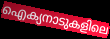
ഐക്യനാടുകളിലെ